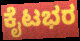
ಕೈಟಭರ